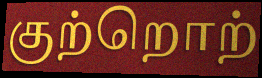
குற்றொற்